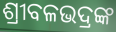
ଶ୍ରୀବଳଭଦ୍ରଙ୍କ